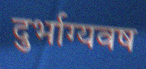
दुर्भाग्यवष